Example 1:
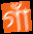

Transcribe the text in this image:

গাঁ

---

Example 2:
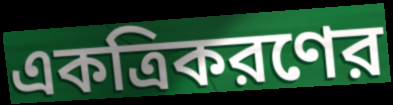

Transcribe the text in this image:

একত্রিকরণের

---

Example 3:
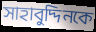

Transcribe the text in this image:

সাহাবুদ্দিনকে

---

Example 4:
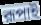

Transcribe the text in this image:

রূপাই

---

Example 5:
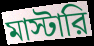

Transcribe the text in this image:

মাস্টারি